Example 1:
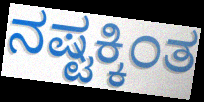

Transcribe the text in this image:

ನಷ್ಟಕ್ಕಿಂತ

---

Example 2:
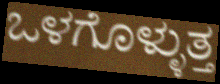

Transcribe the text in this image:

ಒಳಗೊಳ್ಳುತ್ತ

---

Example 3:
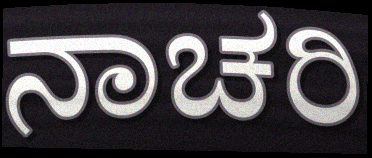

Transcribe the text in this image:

ನಾಚರಿ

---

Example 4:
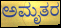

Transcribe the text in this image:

ಅಮೃತರ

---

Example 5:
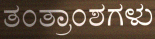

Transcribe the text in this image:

ತಂತ್ರಾಂಶಗಳು